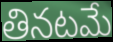
తినటమే